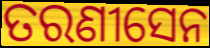
ତରଣୀସେନ